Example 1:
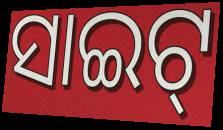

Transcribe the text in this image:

ସାଇଟ୍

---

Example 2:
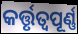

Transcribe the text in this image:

କର୍ତ୍ତୃତ୍ୱପୂର୍ଣ୍ଣ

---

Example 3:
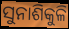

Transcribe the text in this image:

ସୁନାଶିକୁଳି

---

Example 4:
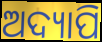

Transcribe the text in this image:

ଅଦ୍ୟାପି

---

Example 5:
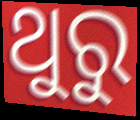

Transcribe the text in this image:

ଥୁରୁ